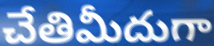
చేతిమీదుగా